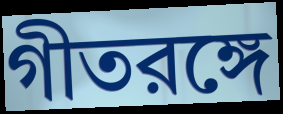
গীতরঙ্গে